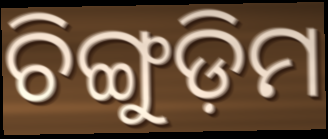
ଚିଙ୍ଗୁଡ଼ିମ